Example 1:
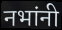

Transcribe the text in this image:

नभांनी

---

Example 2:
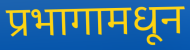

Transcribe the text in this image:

प्रभागामधून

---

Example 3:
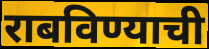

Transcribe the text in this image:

राबविण्याची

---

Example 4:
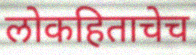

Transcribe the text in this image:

लोकहिताचेच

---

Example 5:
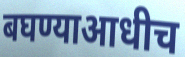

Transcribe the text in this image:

बघण्याआधीच